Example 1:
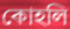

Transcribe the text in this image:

কোহলি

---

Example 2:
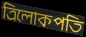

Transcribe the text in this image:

ত্রিলোকপতি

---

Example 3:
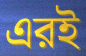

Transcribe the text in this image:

এরই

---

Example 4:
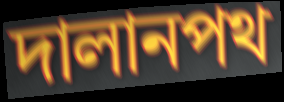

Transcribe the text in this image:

দালানপথ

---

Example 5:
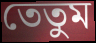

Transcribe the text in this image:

তেতুম